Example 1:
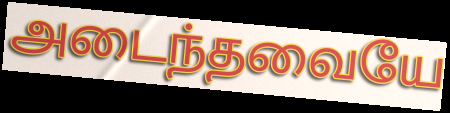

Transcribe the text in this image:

அடைந்தவையே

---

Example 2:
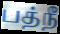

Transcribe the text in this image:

பத்நீ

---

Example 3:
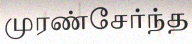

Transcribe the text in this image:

முரண்சேர்ந்த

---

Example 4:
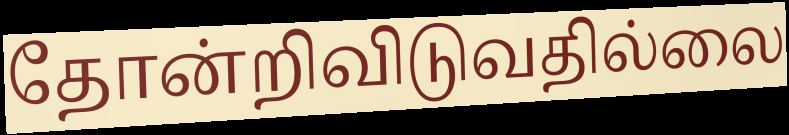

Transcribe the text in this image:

தோன்றிவிடுவதில்லை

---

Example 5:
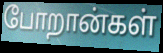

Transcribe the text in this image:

போறான்கள்